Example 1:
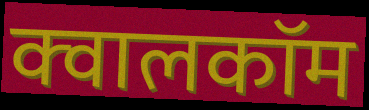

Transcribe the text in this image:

क्‍वालकॉम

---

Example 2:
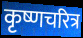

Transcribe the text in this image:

कृष्णचरित्र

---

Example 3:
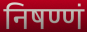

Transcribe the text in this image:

निषण्णं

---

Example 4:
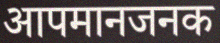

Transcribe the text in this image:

आपमानजनक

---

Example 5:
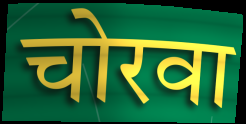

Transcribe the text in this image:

चोरवा